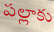
పల్లాకు